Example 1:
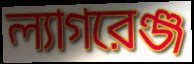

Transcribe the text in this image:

ল্যাগরেঞ্জ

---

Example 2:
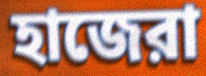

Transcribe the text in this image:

হাজেরা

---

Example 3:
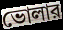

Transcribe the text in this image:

ভোলার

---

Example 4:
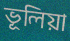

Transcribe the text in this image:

ভূলিয়া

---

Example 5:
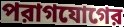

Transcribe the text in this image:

পরাগযোগের